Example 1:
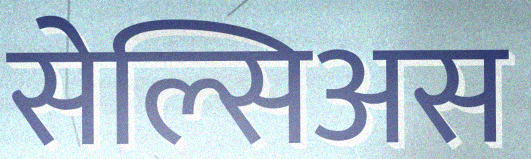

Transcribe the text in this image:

सेल्सिअस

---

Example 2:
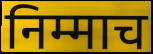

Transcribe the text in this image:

निम्माच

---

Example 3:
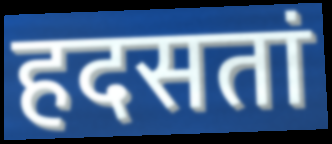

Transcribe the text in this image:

हदसतां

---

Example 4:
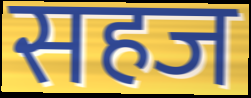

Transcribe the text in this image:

सहज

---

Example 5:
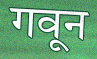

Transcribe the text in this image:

गवून